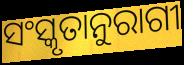
ସଂସ୍କୃତାନୁରାଗୀ